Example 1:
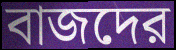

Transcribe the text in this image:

বাজদের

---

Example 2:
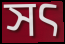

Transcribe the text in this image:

সৎ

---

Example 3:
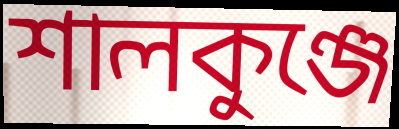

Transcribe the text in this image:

শালকুঞ্জে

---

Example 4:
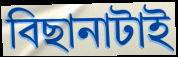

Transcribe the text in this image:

বিছানাটাই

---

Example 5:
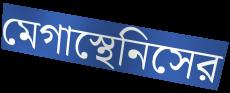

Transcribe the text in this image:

মেগাস্থেনিসের